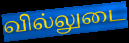
வில்லுடை